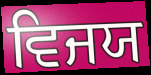
ਵਿਜਯ